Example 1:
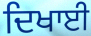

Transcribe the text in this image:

ਦਿਖਾਈ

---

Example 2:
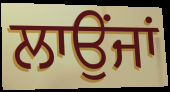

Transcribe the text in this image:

ਲਾਉਂਜਾਂ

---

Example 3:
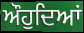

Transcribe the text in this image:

ਔਹੁਦਿਆਂ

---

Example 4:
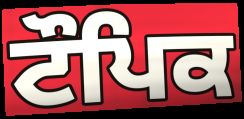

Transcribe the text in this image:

ਟੌਪਿਕ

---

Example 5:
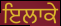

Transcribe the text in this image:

ਇਲਾਕੇ